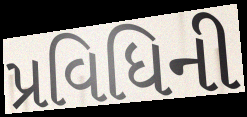
પ્રવિધિની